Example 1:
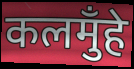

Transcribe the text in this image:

कलमुँहे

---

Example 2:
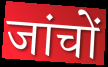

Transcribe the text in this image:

जांचों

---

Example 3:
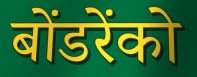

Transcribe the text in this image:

बोंडरेंको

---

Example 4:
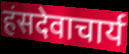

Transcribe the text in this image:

हंसदेवाचार्य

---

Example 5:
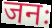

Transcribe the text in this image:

जनः